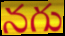
నగు